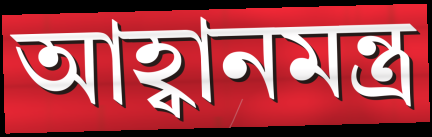
আহ্বানমন্ত্র